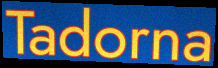
Tadorna